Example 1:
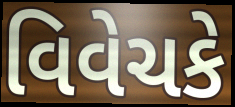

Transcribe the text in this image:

વિવેચકે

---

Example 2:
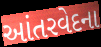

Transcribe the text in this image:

આંતરવેદના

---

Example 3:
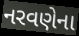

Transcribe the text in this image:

નરવણેના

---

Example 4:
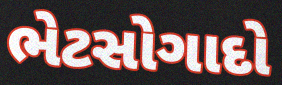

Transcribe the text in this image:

ભેટસોગાદો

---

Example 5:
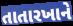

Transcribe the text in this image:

તાતારખાને